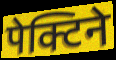
पेक्टिने